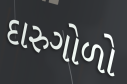
દારુગોળો